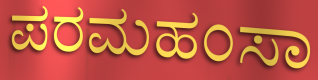
ಪರಮಹಂಸಾ